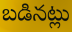
బడినట్లు